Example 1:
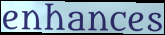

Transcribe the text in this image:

enhances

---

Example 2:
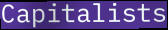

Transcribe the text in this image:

Capitalists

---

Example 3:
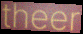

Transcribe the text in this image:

theer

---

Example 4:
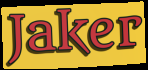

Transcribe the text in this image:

Jaker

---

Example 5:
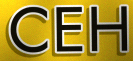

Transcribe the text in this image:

CEH